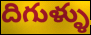
దిగుళ్ళు